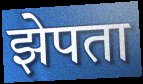
झेपता